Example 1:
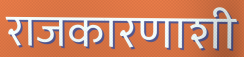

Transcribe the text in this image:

राजकारणाशी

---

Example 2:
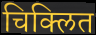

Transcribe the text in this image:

चिक्लित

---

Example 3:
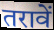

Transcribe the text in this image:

तरावें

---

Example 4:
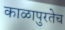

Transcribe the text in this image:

काळापुरतेच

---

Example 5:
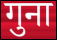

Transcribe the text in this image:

गुना